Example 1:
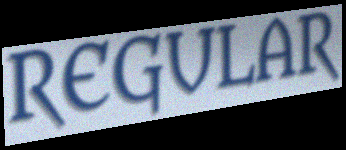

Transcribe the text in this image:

REGULAR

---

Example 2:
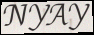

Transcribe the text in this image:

NYAY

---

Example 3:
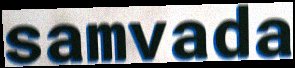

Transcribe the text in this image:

samvada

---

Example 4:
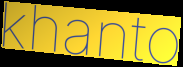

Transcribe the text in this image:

khanto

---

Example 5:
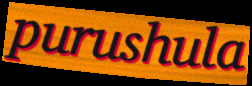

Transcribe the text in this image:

purushula